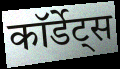
कॉर्डेट्स